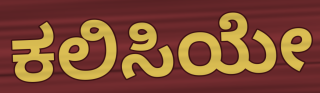
ಕಲಿಸಿಯೇ